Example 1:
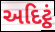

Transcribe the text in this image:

અદિટ્ઠં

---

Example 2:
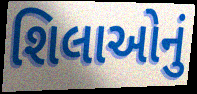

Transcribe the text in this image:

શિલાઓનું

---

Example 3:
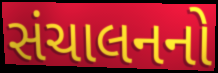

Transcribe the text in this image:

સંચાલનનો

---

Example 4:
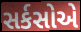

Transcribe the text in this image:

સર્કસોએ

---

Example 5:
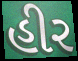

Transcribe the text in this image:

હીર